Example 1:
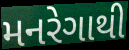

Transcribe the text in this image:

મનરેગાથી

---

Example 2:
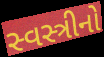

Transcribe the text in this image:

સ્વસ્ત્રીનો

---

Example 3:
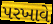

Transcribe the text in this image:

પરખાવે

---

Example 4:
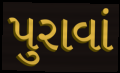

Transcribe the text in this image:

પુરાવાં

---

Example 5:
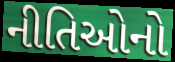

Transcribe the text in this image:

નીતિઓનો